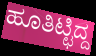
ಹೂತಿಟ್ಟಿದ್ದ